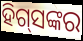
ହିଗ୍‌ସଙ୍କର